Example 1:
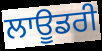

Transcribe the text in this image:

ਲਾਊਡਰੀ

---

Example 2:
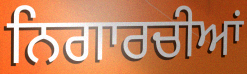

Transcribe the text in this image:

ਨਿਗਾਰਚੀਆਂ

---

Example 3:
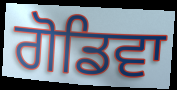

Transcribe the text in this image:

ਗੋਡਿਵਾ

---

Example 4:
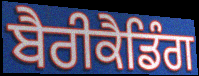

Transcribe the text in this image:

ਬੈਰੀਕੈਡਿੰਗ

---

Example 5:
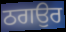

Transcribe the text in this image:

ਠਗਉਰ